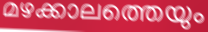
മഴക്കാലത്തെയും